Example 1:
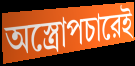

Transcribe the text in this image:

অস্ত্রোপচারেই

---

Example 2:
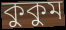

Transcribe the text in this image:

কুকুম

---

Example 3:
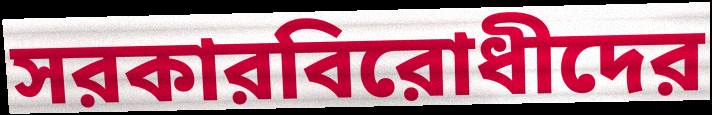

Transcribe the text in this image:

সরকারবিরোধীদের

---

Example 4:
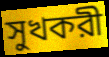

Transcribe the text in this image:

সুখকরী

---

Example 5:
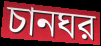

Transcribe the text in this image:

চানঘর